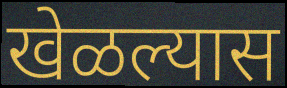
खेळल्यास